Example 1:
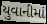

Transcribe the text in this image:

યુવાનીમાં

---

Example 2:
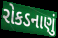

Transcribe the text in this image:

રોકડનાણું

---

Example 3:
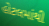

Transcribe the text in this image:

હોટલમાંથી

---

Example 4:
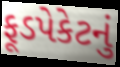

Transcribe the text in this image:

ફૂડપેકેટનું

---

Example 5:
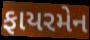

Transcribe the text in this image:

ફાયરમેન